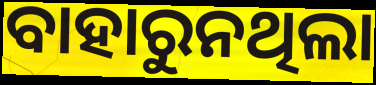
ବାହାରୁନଥିଲା